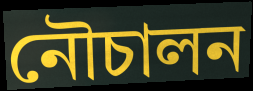
নৌচালন